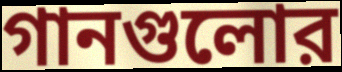
গানগুলোর